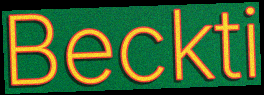
Beckti